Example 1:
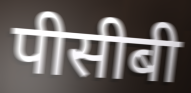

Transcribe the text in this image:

पीसीबी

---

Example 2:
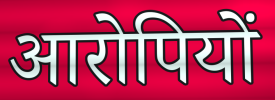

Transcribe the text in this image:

आरोपियों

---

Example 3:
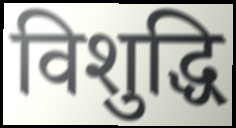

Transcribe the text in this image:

विशुद्धि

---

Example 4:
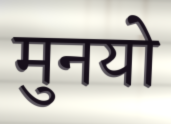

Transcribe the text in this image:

मुनयो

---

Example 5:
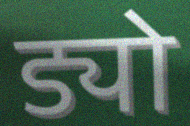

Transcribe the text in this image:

ड्यो